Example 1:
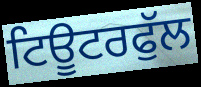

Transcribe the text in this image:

ਟਿਊਟਰਫੁੱਲ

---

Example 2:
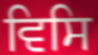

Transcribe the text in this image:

ਵਿਸਿ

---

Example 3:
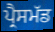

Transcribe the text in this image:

ਪ੍ਰੈਸਮੱਡ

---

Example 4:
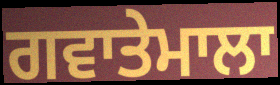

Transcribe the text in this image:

ਗਵਾਤੇਮਾਲਾ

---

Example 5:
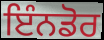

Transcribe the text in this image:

ਇੰਨਡੋਰ